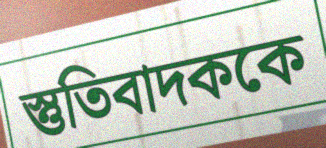
স্তুতিবাদককে